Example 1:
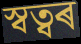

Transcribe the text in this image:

স্বত্বৰ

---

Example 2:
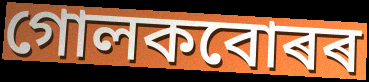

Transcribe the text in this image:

গোলকবোৰৰ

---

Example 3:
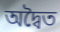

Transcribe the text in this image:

অদ্বৈত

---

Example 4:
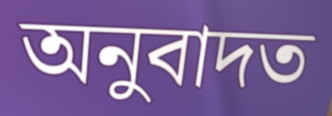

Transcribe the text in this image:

অনুবাদত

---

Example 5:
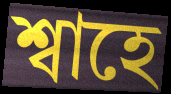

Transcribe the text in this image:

শ্বাহে